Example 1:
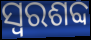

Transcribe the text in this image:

ସ୍ୱରଶବ୍ଦ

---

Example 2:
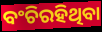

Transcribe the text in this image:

ବଂଚିରହିଥିବା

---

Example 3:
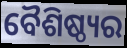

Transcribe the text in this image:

ବୈଶିଷ୍ଠ୍ୟର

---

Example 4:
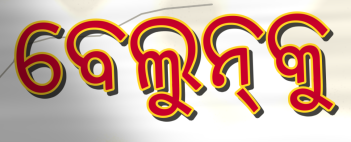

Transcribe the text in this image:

ବେଲୁନ୍‌କୁ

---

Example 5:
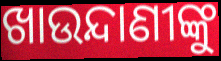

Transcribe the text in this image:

ଖାଉନ୍ଦାଣୀଙ୍କୁ